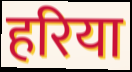
हरिया